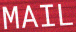
MAIL